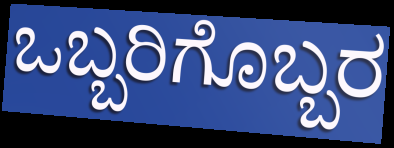
ಒಬ್ಬರಿಗೊಬ್ಬರ